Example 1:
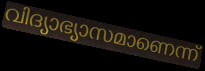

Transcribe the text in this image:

വിദ്യാഭ്യാസമാണെന്ന്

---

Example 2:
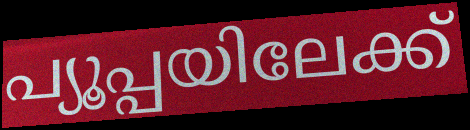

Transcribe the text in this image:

പ്യൂപ്പയിലേക്ക്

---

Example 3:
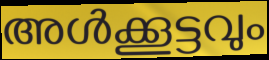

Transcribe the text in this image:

അൾക്കൂട്ടവും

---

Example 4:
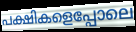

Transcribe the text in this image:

പക്ഷികളെപ്പോലെ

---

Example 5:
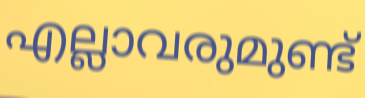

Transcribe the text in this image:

എല്ലാവരുമുണ്ട്